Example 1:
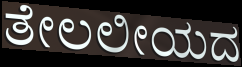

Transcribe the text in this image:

ತೇಲಲೀಯದ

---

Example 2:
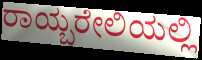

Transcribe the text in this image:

ರಾಯ್ಬರೇಲಿಯಲ್ಲಿ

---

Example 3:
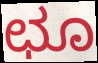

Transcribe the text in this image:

ಛೂ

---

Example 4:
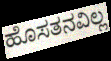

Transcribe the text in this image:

ಹೊಸತನವಿಲ್ಲ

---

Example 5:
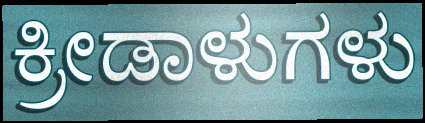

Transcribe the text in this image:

ಕ್ರೀಡಾಳುಗಳು